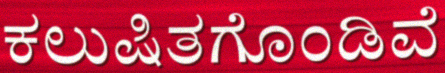
ಕಲುಷಿತಗೊಂಡಿವೆ